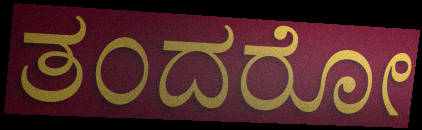
ತಂದರೋ